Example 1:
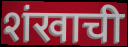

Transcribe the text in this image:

शंखाची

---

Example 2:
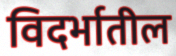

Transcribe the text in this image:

विदर्भातील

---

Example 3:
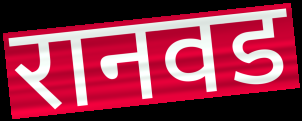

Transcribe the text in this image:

रानवड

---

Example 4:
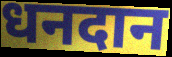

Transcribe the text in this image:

धनदान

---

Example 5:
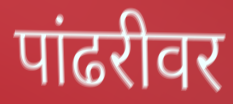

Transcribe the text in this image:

पांढरीवर